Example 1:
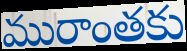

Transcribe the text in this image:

మురాంతకు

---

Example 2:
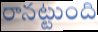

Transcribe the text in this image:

రానట్టుంది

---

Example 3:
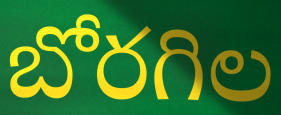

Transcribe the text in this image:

బోరగిల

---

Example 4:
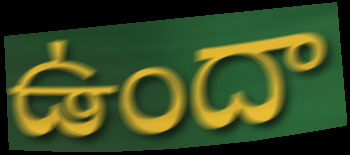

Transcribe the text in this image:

ఉందా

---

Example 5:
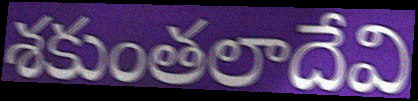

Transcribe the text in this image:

శకుంతలాదేవి